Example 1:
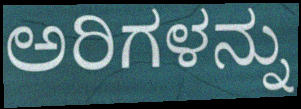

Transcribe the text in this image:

ಅರಿಗಳನ್ನು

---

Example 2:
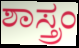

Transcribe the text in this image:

ಶಾಸ್ತ್ರಂ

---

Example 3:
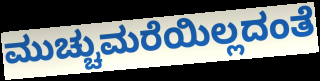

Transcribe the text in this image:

ಮುಚ್ಚುಮರೆಯಿಲ್ಲದಂತೆ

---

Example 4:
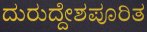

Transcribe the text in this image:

ದುರುದ್ದೇಶಪೂರಿತ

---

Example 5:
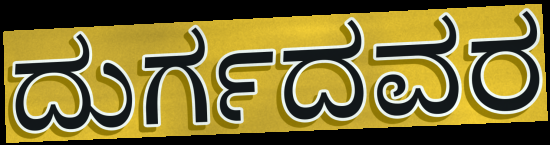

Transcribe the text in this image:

ದುರ್ಗದವರ